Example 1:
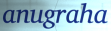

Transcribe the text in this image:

anugraha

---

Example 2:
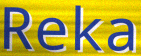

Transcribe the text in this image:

Reka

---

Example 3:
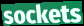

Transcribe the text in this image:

sockets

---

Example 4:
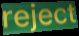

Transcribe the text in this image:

reject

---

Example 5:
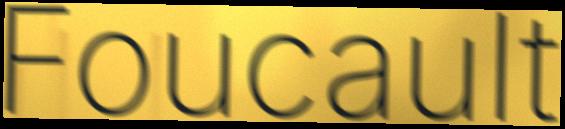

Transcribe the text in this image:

Foucault